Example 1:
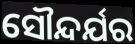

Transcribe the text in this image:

ସୌନ୍ଦର୍ଯର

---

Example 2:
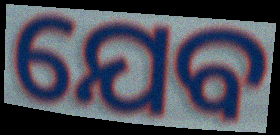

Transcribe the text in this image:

ଯେବ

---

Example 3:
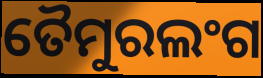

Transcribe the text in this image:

ତୈମୁରଲଂଗ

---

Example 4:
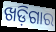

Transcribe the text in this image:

ଖଡ଼ିଗାର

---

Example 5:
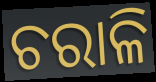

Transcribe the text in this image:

ଚରାଳି